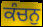
ਕੰਚਨੁ